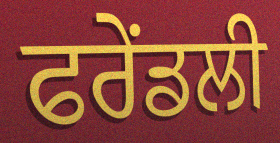
ਫਰੇਂਡਲੀ